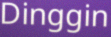
Dinggin